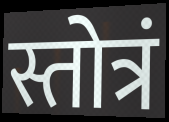
स्तोत्रं